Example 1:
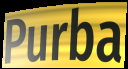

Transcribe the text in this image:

Purba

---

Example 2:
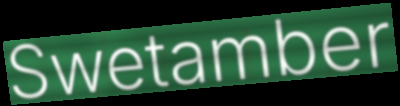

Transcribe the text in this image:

Swetamber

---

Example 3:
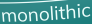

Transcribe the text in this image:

monolithic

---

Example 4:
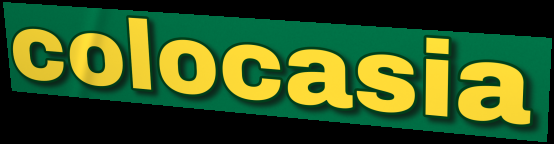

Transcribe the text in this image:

colocasia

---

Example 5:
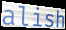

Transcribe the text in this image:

alish